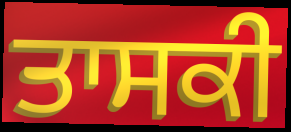
ਤਾਸਕੀ